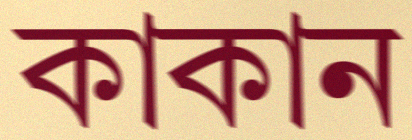
কাকান